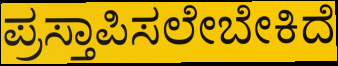
ಪ್ರಸ್ತಾಪಿಸಲೇಬೇಕಿದೆ